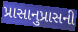
પ્રાસાનુપ્રાસની